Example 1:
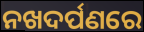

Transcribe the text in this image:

ନଖଦର୍ପଣରେ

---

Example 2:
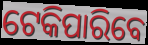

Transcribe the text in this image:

ଟେକିପାରିବେ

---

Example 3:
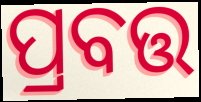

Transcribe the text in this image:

ପ୍ରବତ୍ତ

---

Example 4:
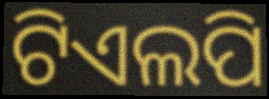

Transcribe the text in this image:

ଟିଏଲପି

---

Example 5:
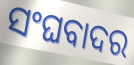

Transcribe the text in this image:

ସଂଘବାଦର